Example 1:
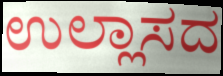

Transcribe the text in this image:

ಉಲ್ಲಾಸದ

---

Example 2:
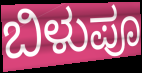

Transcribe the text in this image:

ಬಿಳುಪೂ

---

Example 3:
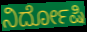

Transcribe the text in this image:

ನಿರ್ದೋಷಿ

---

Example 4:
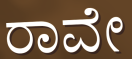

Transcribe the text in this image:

ರಾವೇ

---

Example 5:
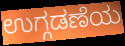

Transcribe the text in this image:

ಉಗ್ಗಡಣೆಯ